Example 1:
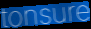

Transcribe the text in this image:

tonsure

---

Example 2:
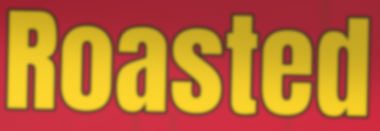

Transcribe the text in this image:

Roasted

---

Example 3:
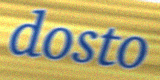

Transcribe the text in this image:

dosto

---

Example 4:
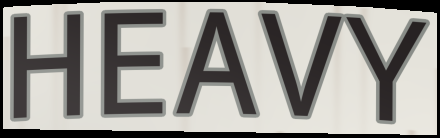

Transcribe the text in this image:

HEAVY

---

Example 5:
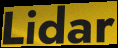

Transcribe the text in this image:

Lidar